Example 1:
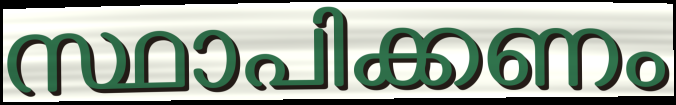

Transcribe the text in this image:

സ്ഥാപിക്കണം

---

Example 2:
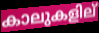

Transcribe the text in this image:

കാലുകളില്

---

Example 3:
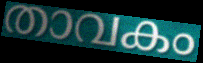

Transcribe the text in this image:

താവകം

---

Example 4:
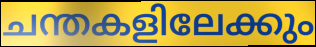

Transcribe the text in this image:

ചന്തകളിലേക്കും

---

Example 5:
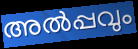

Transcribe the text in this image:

അൽപ്പവും